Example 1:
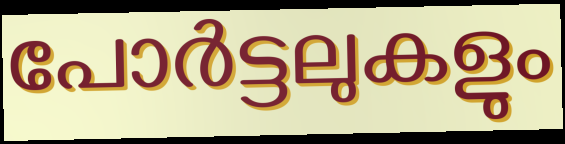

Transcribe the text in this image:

പോർട്ടലുകളും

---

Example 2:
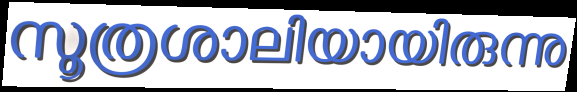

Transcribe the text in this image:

സൂത്രശാലിയായിരുന്നു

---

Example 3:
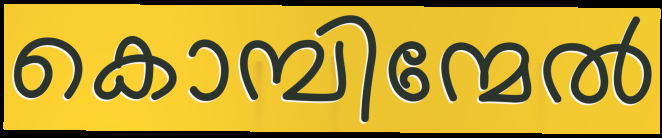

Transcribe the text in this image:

കൊമ്പിന്മേൽ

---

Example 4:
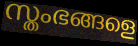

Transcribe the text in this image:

സ്തംഭങ്ങളെ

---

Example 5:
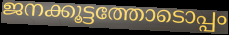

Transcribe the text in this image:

ജനക്കൂട്ടത്തോടൊപ്പം